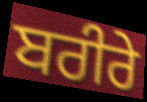
ਬਰੀਰੇ